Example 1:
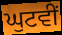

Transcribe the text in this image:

ਘੁਟਵੀਂ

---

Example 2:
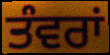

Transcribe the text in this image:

ਤੰਵਰਾਂ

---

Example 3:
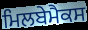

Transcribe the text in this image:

ਮਿਲਬੇਮੈਕਸ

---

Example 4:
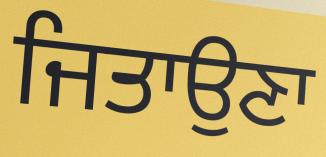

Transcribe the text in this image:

ਜਿਤਾਉਣਾ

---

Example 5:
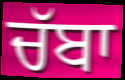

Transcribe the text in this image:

ਚੱਬਾ